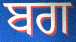
ਬਗ